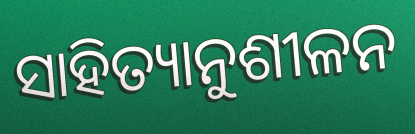
ସାହିତ୍ୟାନୁଶୀଳନ